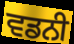
ਵਡਨੀ